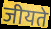
जीयते